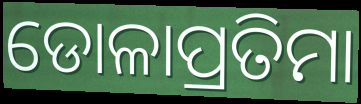
ଡୋଳାପ୍ରତିମା